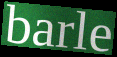
barle